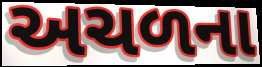
અચળના